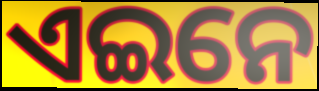
ଏଇନେ